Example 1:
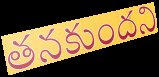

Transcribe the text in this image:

తనకుందని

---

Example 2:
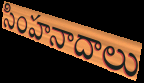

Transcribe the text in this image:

సింహనాదాలు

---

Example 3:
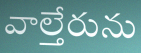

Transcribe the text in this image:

వాల్తేరును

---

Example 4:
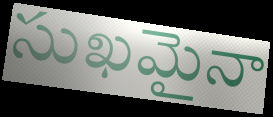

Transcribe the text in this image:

సుఖమైనా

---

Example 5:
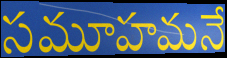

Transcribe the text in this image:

సమూహమనే